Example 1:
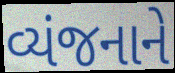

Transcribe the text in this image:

વ્યંજનાને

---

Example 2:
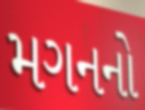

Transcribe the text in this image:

મગનનો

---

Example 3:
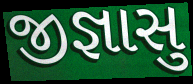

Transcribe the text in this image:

જીજ્ઞાસુ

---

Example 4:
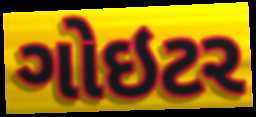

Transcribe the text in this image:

ગોઇટર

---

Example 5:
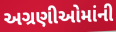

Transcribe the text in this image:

અગ્રણીઓમાંની